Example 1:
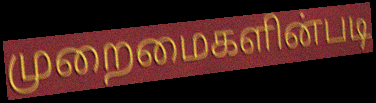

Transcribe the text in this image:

முறைமைகளின்படி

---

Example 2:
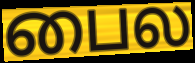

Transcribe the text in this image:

பைல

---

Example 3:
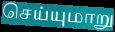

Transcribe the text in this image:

செய்யுமாறு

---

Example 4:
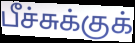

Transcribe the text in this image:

பீச்சுக்குக்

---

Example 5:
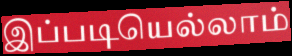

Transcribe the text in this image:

இப்படியெல்லாம்